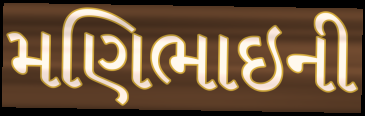
મણિભાઇની